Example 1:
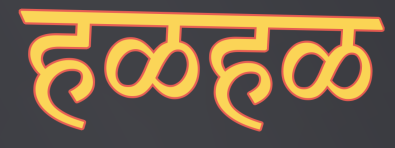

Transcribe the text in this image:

हळहळ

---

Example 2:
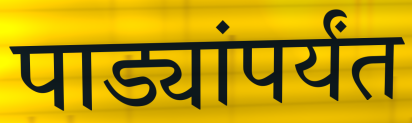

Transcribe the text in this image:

पाड्यांपर्यंत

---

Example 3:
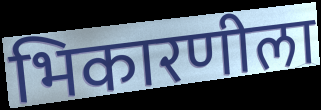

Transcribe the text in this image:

भिकारणीला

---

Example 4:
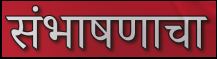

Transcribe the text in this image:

संभाषणाचा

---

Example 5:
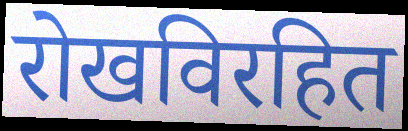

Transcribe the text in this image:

रोखविरहित